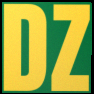
DZ